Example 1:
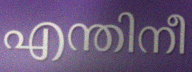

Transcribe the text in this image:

എന്തിനീ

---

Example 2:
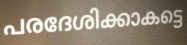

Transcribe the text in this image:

പരദേശിക്കാകട്ടെ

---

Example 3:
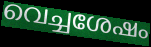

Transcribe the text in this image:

വെച്ചശേഷം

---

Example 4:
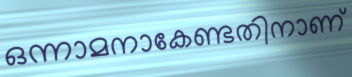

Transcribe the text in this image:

ഒന്നാമനാകേണ്ടതിനാണ്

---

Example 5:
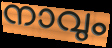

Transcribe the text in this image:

നാവും